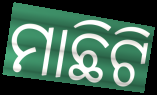
ମାଛିଟି